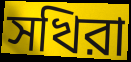
সখিরা